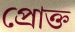
প্রোক্ত